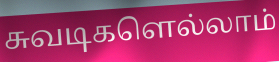
சுவடிகளெல்லாம்